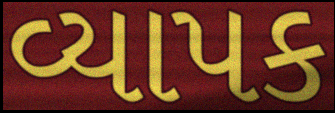
વ્યાપક